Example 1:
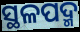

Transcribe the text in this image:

ସ୍ଥଳପଦ୍ମ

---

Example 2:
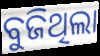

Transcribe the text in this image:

ବୁଜିଥିଲା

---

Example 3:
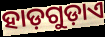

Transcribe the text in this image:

ହାଡ଼ଗୁଡ଼ାଏ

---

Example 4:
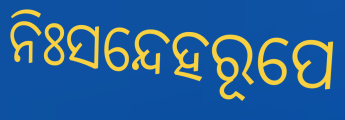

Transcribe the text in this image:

ନିଃସନ୍ଦେହରୂପେ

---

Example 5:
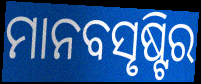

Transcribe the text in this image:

ମାନବସୃଷ୍ଟିର